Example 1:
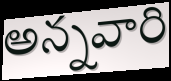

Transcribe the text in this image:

అన్నవారి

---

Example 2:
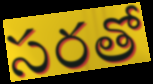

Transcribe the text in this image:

సరతో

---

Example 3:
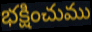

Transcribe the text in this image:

భక్షించుము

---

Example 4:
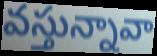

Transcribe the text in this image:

వస్తున్నావా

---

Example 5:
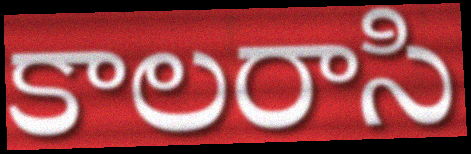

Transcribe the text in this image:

కాలరాసి